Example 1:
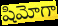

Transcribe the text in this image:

షిమోగా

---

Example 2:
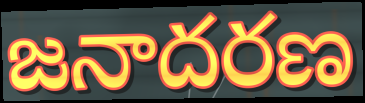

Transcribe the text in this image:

జనాదరణ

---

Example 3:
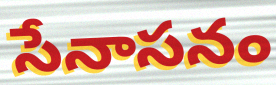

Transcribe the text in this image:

సేనాసనం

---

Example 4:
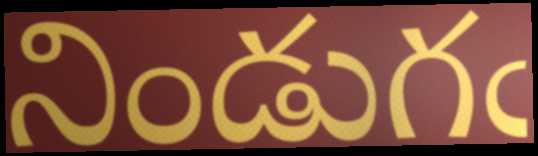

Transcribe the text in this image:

నిండుగఁ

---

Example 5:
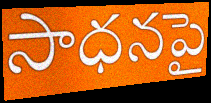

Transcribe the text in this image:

సాధనపై